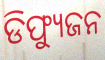
ଡିଫ୍ୟୁଜନ